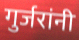
गुर्जरांनी